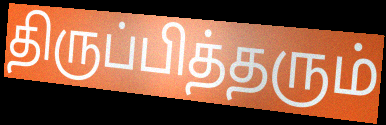
திருப்பித்தரும்